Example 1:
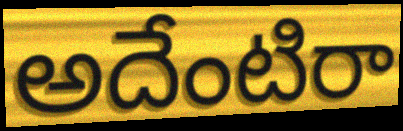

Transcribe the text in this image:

అదేంటిరా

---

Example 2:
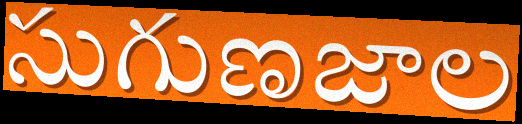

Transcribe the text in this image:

సుగుణజాల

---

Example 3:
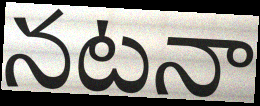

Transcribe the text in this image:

నటనా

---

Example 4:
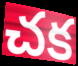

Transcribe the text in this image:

చక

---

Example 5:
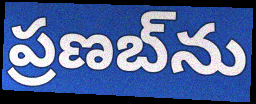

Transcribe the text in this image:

ప్రణబ్‌ను